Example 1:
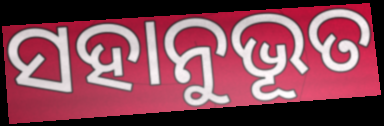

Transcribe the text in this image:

ସହାନୁଭୂତ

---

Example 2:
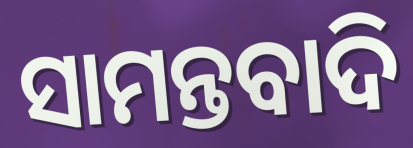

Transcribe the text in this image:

ସାମନ୍ତବାଦି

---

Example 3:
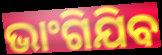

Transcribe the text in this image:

ଭାଂଗିଯିବ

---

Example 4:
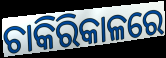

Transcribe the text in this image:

ଚାକିରିକାଳରେ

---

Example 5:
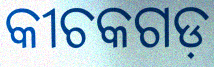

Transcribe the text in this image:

କୀଚକଗଡ଼